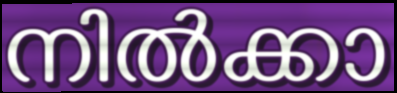
നിൽക്കാ